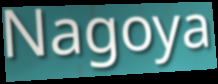
Nagoya